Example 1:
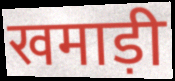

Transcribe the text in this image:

खमाड़ी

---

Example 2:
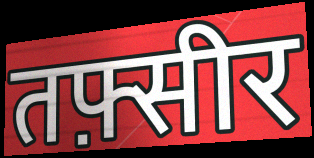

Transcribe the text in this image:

तफ़्सीर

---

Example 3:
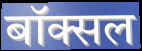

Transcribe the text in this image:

बॉक्सल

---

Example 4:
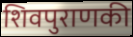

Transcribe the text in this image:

शिवपुराणकी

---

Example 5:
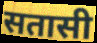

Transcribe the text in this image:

सतासी